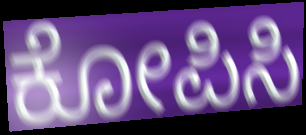
ಕೋಪಿಸಿ